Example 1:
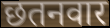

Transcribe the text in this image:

छतनवार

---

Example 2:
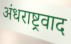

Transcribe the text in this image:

अंधराष्ट्रवाद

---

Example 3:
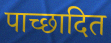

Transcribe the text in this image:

पाच्छादित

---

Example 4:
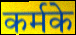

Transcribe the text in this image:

कर्मके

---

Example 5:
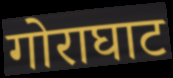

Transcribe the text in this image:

गोराघाट